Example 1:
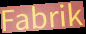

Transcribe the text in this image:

Fabrik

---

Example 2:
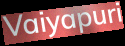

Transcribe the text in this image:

Vaiyapuri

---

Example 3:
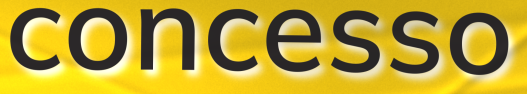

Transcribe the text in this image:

concesso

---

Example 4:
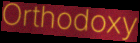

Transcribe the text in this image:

Orthodoxy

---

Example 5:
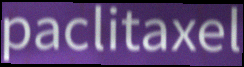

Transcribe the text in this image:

paclitaxel